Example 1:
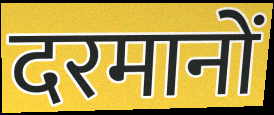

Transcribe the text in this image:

दरमानों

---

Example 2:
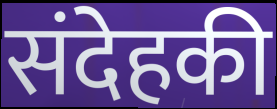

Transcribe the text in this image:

संदेहकी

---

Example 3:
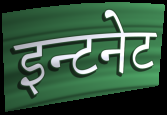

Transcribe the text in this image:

इन्टनेट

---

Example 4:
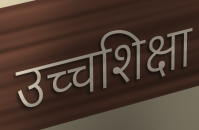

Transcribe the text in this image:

उच्चशिक्षा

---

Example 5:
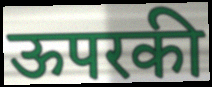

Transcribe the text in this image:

ऊपरकी